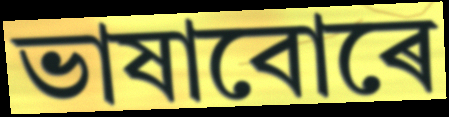
ভাষাবোৰে